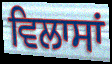
ਵਿਲਾਸਾਂ